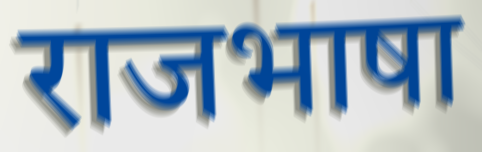
राजभाषा